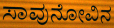
ಸಾವುನೋವಿನ